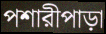
পশারীপাড়া